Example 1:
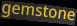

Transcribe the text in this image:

gemstone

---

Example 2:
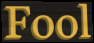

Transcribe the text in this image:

Fool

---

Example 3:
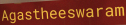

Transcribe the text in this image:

Agastheeswaram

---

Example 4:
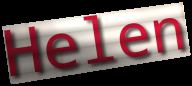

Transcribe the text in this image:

Helen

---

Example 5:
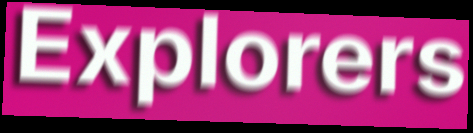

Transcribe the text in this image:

Explorers